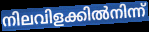
നിലവിളക്കിൽനിന്ന്